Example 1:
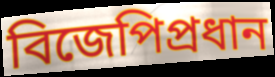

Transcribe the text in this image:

বিজেপিপ্রধান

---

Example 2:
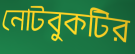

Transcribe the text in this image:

নোটবুকটির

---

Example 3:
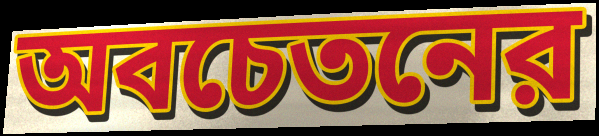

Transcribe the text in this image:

অবচেতনের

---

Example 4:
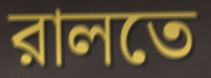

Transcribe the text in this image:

রালতে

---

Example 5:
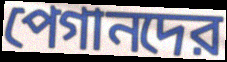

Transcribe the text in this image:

পেগানদের